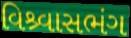
વિશ્ર્વાસભંગ